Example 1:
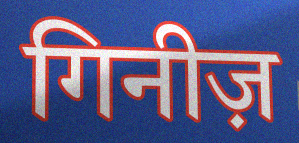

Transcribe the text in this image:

गिनीज़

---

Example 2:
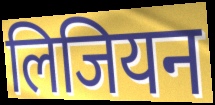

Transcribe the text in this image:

लिजियन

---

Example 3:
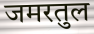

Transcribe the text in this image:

जमरतुल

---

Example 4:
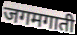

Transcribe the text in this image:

जगमगाती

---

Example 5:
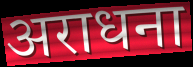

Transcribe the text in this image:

अराधना